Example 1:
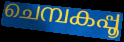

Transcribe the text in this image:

ചെമ്പകപ്പൂ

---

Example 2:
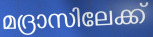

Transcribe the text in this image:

മദ്രാസിലേക്ക്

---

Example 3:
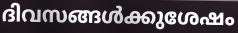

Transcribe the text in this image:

ദിവസങ്ങൾക്കുശേഷം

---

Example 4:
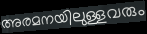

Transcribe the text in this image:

അരമനയിലുള്ളവരും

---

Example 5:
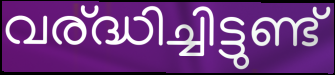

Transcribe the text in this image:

വര്ദ്ധിച്ചിട്ടുണ്ട്